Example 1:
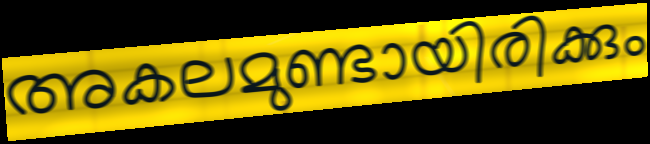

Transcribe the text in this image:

അകലമുണ്ടായിരിക്കും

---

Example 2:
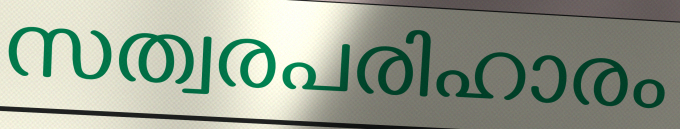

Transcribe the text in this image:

സത്വരപരിഹാരം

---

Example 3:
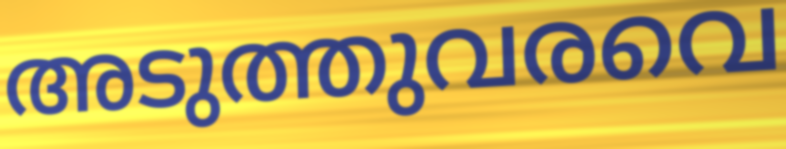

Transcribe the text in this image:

അടുത്തുവരവെ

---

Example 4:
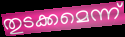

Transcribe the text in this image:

തുടക്കമെന്ന്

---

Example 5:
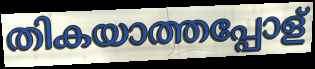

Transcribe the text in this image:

തികയാത്തപ്പോള്